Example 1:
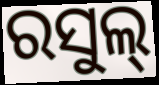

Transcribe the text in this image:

ରସୁଲ୍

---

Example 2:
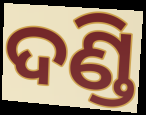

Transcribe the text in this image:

ଦଣ୍ଡି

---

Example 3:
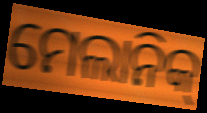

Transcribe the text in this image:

ମେଲାନିକ୍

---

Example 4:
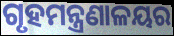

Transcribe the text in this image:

ଗୃହମନ୍ତ୍ରଣାଳୟର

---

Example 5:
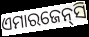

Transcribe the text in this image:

ଏମାରଜେନ୍‌ସି